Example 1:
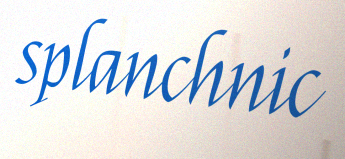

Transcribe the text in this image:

splanchnic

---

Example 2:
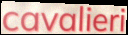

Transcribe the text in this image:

cavalieri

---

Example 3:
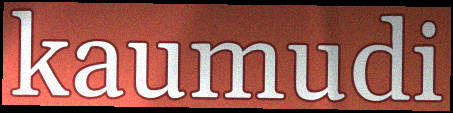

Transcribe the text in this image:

kaumudi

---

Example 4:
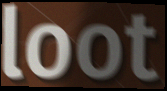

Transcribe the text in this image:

loot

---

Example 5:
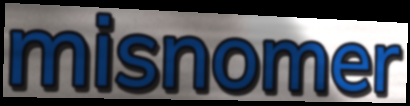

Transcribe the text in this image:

misnomer